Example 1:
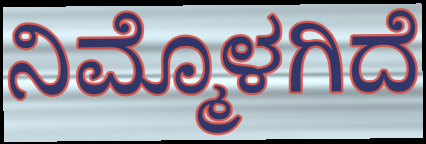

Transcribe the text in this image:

ನಿಮ್ಮೊಳಗಿದೆ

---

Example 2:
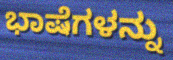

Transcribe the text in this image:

ಭಾಷೆಗಳನ್ನು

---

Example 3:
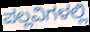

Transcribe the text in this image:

ಪಲ್ಲವಿಗಳಲ್ಲಿ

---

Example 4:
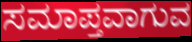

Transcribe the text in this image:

ಸಮಾಪ್ತವಾಗುವ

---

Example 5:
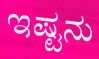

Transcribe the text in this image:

ಇಷ್ಟನು